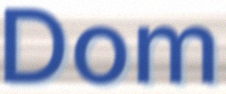
Dom